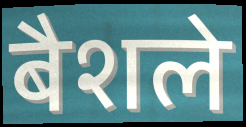
बैशले